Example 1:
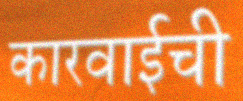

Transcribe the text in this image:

कारवाईची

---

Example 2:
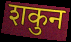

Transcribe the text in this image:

शकुन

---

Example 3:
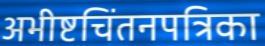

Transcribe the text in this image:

अभीष्टचिंतनपत्रिका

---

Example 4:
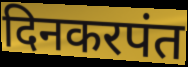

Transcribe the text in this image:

दिनकरपंत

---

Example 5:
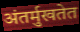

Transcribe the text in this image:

अंतर्मुखतेत